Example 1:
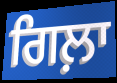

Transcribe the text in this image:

ਗਿਲ਼ਾ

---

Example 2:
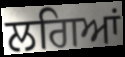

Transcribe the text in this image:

ਲਗਿਆਂ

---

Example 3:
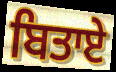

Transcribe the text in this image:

ਬਿਤਾਏ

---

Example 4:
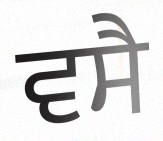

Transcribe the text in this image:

ਵਸੈ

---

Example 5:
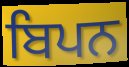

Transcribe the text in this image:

ਬਿਪਨ